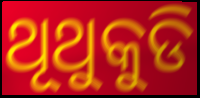
ଥୂଥୁକୁଡି